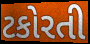
ટકોરતી